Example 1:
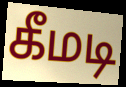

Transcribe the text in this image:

கீமடி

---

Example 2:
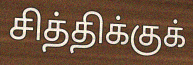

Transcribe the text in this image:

சித்திக்குக்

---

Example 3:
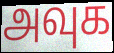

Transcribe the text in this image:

அவுக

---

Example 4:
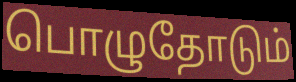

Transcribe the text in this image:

பொழுதோடும்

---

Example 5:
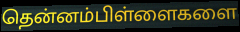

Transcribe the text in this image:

தென்னம்பிள்ளைகளை